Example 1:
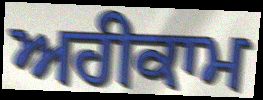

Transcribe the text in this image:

ਅਹੀਕਾਮ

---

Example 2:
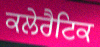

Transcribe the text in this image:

ਕਲੇਰੈਟਿਕ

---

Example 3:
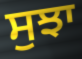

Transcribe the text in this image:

ਸੁਝਾ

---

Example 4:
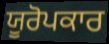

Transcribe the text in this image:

ਯੂਰੋਪਕਾਰ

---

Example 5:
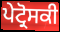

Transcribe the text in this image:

ਪੇਟ੍ਰੋਸਕੀ